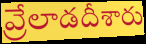
వ్రేలాడదీశారు